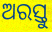
ଅରସ୍ତୁ